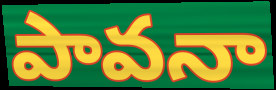
పావనా